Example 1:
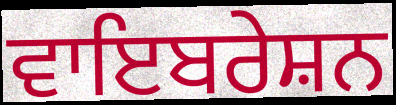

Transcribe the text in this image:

ਵਾਇਬਰੇਸ਼ਨ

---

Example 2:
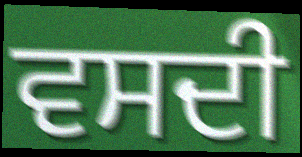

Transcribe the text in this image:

ਵਸਦੀ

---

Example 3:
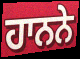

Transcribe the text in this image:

ਹਾਨਨੇ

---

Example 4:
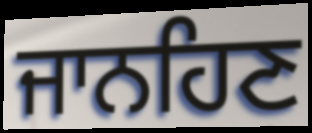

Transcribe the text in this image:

ਜਾਨਹਿਣ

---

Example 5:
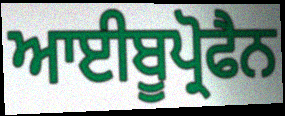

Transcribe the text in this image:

ਆਈਬੂਪ੍ਰੋਫੈਨ